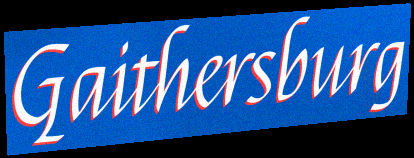
Gaithersburg